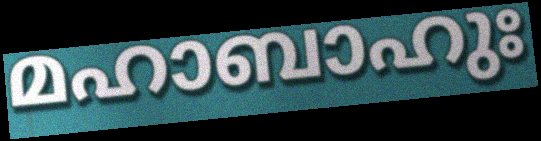
മഹാബാഹുഃ